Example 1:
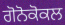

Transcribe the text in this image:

ਗੋਨੋਕੋਕਲ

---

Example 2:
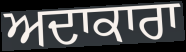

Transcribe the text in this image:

ਅਦਾਕਾਰਾ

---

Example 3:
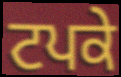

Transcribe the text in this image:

ਟਪਕੇ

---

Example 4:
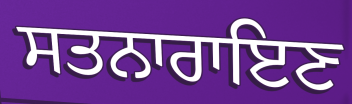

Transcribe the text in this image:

ਸਤਨਾਰਾਇਣ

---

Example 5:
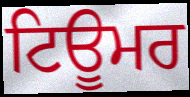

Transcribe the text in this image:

ਟਿਊਮਰ